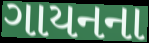
ગાયનના